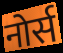
नोर्स